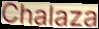
Chalaza